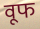
वूफ